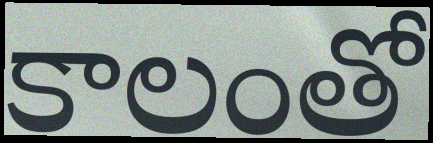
కాలంతో